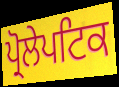
ਪ੍ਰੋਲੇਪਟਿਕ